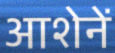
आशेनें